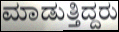
ಮಾಡುತ್ತಿದ್ದರು